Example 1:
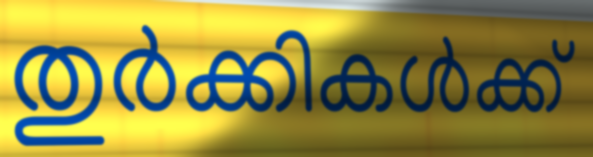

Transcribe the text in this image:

തുർക്കികൾക്ക്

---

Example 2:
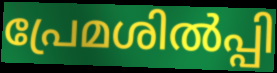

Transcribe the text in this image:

പ്രേമശിൽപ്പി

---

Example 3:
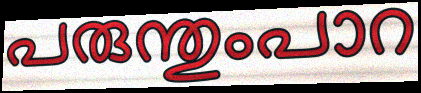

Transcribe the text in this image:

പരുന്തുംപാറ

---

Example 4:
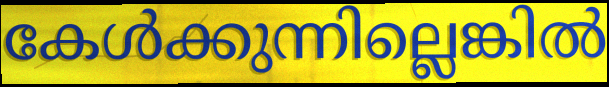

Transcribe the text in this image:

കേൾക്കുന്നില്ലെങ്കിൽ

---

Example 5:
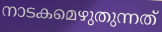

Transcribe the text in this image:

നാടകമെഴുതുന്നത്